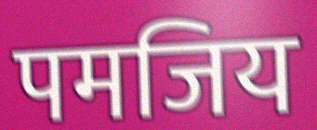
पमजिय